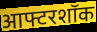
आफ्टरशॉक